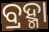
ବ୍ରହ୍ମା